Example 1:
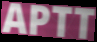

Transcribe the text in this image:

APTT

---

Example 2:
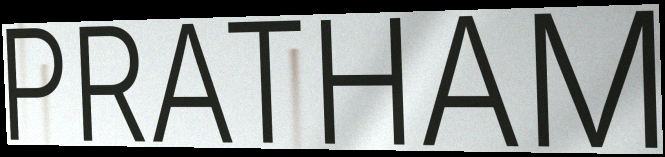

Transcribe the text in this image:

PRATHAM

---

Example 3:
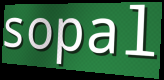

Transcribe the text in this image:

sopal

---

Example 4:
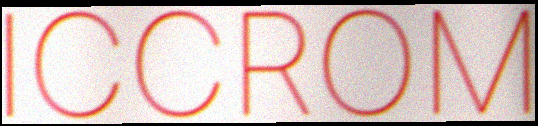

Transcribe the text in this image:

ICCROM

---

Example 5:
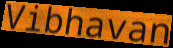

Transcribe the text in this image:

Vibhavan